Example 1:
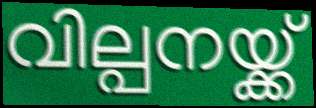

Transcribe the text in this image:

വില്പനയ്ക്ക്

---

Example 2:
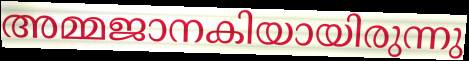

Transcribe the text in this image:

അമ്മജാനകിയായിരുന്നു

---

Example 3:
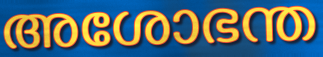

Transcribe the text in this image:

അശോഭന്ത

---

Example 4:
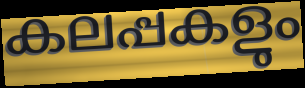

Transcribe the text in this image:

കലപ്പകളും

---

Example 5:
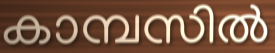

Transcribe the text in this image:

കാമ്പസിൽ